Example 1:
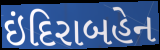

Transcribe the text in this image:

ઇંદિરાબહેન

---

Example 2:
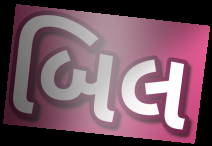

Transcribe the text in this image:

બિલ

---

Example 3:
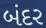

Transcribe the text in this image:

બંદર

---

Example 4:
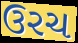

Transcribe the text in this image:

ઉરચ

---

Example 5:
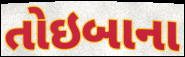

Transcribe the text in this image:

તોઇબાના